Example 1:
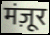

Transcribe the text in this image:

मंज़ूर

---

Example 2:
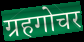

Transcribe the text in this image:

ग्रहगोचर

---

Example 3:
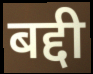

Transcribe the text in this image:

बद्दी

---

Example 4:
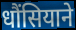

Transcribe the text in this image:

धौंसियाने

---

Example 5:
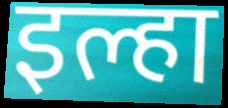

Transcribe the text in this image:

इल्हा